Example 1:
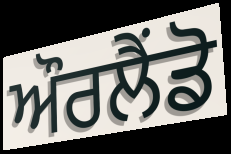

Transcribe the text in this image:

ਔਰਲੈਂਡੋ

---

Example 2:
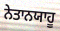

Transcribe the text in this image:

ਨੇਤਾਨਯਾਹੂ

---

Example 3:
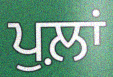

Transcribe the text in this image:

ਪੁਲ਼ਾਂ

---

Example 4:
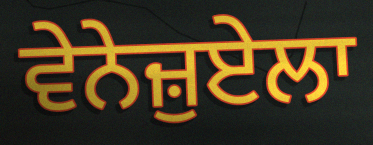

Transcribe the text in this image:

ਵੇਨੇਜ਼ੁਏਲਾ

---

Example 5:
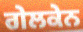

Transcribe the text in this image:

ਗੇਲਕੇਨ